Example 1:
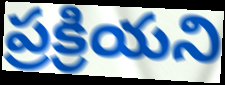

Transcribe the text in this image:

ప్రక్రియని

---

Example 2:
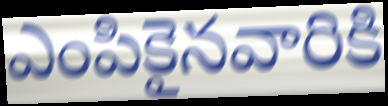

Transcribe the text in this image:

ఎంపికైనవారికి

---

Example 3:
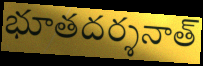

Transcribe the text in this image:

భూతదర్శనాత్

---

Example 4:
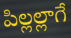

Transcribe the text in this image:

పిల్లల్లాగే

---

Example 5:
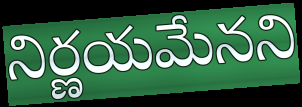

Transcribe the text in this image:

నిర్ణయమేనని